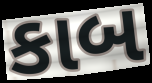
કાબ